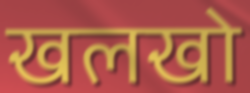
खलखो